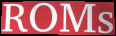
ROMs